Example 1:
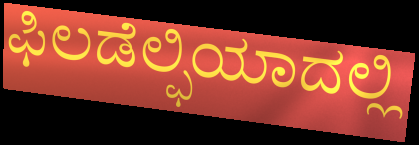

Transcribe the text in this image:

ಫಿಲಡೆಲ್ಫಿಯಾದಲ್ಲಿ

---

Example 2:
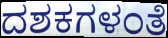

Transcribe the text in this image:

ದಶಕಗಳಂತೆ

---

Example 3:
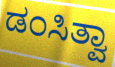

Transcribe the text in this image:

ಡಂಸಿತ್ವಾ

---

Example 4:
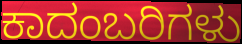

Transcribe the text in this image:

ಕಾದಂಬರಿಗಳು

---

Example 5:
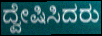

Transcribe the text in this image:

ದ್ವೇಷಿಸಿದರು